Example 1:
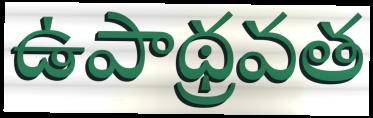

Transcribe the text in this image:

ఉపాథ్రవత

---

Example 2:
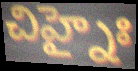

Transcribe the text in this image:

చిహ్నైః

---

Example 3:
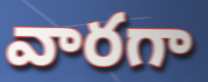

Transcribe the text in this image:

వారగా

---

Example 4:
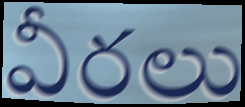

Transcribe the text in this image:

వీరలు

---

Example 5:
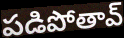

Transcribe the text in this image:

పడిపోతావ్